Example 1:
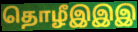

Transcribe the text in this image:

தொழீஇஇஇ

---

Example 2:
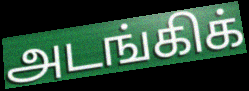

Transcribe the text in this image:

அடங்கிக்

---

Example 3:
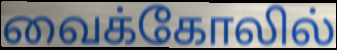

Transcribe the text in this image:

வைக்கோலில்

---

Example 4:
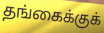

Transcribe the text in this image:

தங்கைக்குக்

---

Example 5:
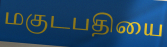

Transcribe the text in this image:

மகுடபதியை